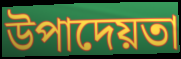
উপাদেয়তা